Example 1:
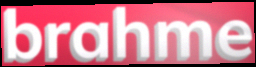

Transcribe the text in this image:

brahme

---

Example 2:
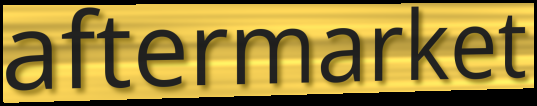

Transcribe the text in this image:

aftermarket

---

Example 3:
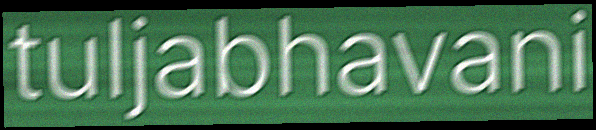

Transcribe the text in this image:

tuljabhavani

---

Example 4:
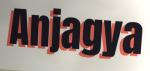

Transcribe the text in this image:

Anjagya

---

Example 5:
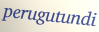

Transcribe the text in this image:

perugutundi